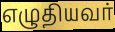
எழுதியவர்